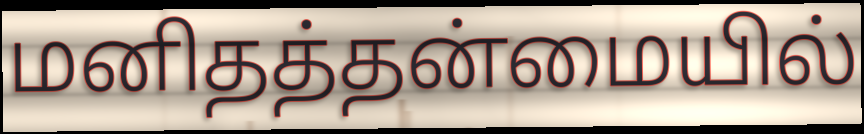
மனிதத்தன்மையில்